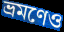
ভ্রমণেও